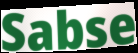
Sabse